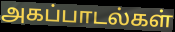
அகப்பாடல்கள்